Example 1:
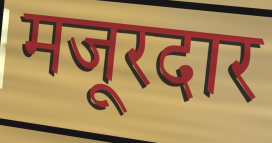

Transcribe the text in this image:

मजूरदार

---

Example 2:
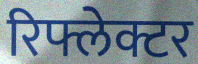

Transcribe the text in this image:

रिफ्लेक्टर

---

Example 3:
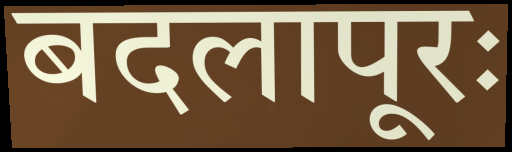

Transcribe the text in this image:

बदलापूरः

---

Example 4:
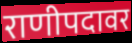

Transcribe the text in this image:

राणीपदावर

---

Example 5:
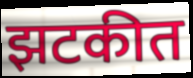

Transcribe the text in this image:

झटकीत